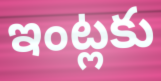
ఇంట్లకు